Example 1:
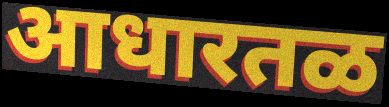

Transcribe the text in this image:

आधारतळ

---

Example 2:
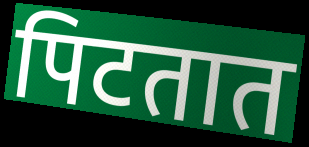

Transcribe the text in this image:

पिटतात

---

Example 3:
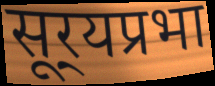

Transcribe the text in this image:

सूर्यप्रभा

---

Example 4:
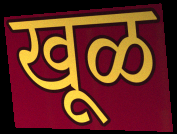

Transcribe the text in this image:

खूळ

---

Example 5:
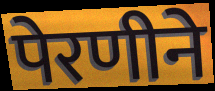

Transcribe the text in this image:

पेरणीने